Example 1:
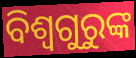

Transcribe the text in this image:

ବିଶ୍ୱଗୁରୁଙ୍କ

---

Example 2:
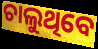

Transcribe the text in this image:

ଚାଲୁଥିବେ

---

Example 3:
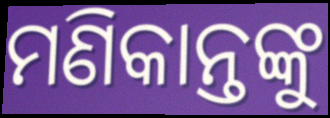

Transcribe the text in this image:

ମଣିକାନ୍ତଙ୍କୁ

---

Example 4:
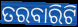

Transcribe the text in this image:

ତରବାରିଟି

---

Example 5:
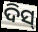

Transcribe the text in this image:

ଦିସ୍